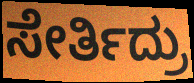
ಸೇರ್ತಿದ್ರು